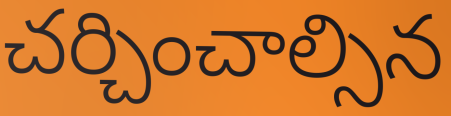
చర్చించాల్సిన